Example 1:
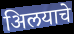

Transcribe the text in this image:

अिलयाचे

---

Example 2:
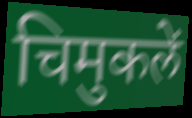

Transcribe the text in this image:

चिमुकलें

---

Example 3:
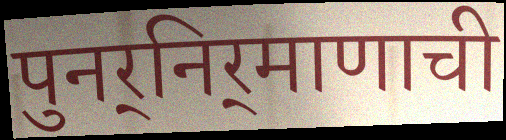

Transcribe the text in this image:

पुनर्निर्माणाची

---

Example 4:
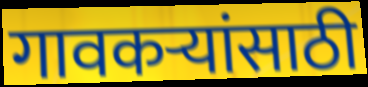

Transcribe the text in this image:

गावकऱ्यांसाठी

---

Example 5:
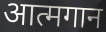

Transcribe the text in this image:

आत्मगान